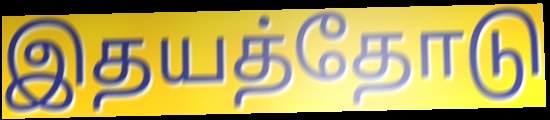
இதயத்தோடு